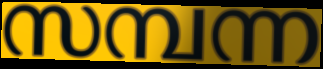
സമ്പന്ന